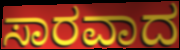
ಸಾರವಾದ